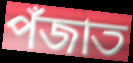
পঁজাত